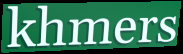
khmers